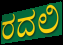
ರದಲಿ